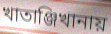
খাতাঞ্জিখানায়